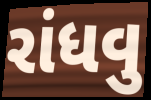
રાંધવુ